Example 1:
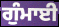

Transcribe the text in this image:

ਗੁੰਮਾਈ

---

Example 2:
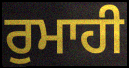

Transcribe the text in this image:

ਰੁਮਾਹੀ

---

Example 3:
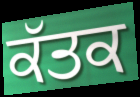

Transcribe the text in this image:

ਕੱਤਕ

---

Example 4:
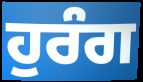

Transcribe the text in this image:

ਹੁਰੰਗ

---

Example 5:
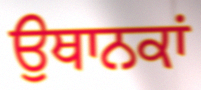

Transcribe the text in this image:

ਉਥਾਨਕਾਂ